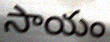
సాయం